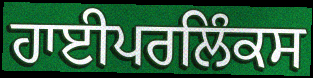
ਹਾਈਪਰਲਿੰਕਸ